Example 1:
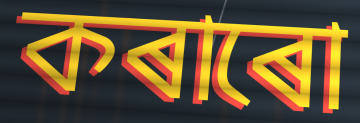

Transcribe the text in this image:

কৰাৰো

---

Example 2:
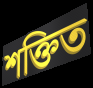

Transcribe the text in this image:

শক্তিত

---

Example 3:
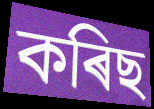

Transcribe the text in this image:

কৰিছ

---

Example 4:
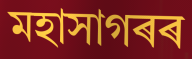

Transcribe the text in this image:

মহাসাগৰৰ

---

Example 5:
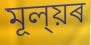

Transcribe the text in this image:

মূল্য়ৰ